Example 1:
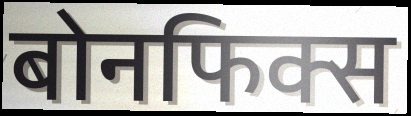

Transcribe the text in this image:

बोनफिक्स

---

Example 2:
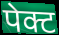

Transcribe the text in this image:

पेक्ट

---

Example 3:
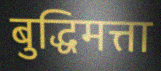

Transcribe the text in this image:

बुद्धिमत्ता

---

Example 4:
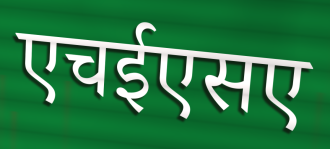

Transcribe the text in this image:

एचईएसए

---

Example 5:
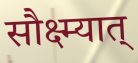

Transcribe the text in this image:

सौक्ष्म्यात्